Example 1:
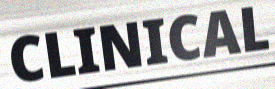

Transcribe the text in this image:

CLINICAL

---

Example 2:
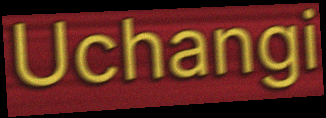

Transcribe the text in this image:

Uchangi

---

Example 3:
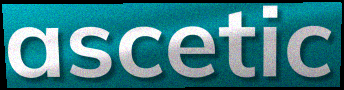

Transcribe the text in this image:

ascetic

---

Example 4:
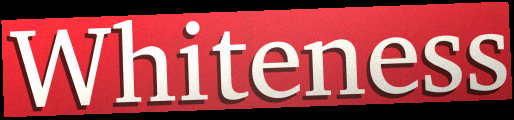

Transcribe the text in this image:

Whiteness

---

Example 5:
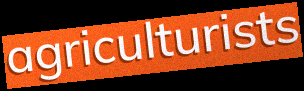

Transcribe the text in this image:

agriculturists